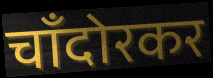
चाँदोरकर